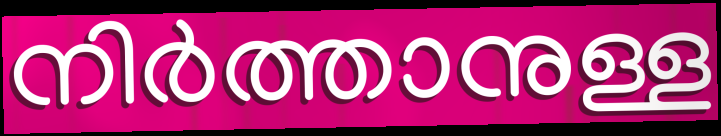
നിർത്താനുള്ള